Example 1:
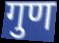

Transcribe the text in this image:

गुण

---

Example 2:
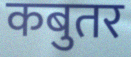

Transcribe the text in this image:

कबुतर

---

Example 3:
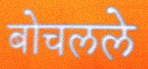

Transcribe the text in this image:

बोचलले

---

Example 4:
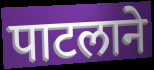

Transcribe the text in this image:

पाटलाने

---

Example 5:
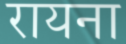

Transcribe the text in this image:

रायना